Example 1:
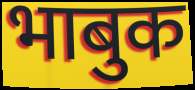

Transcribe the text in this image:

भाबुक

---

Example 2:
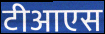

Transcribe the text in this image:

टीआएस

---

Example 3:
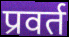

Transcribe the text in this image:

प्रवर्त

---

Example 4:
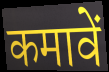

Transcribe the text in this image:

कमावें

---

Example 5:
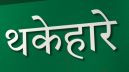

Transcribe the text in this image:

थकेहारे